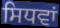
ਸਿਧਵਾਂ